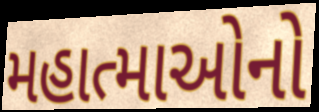
મહાત્માઓનો